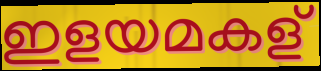
ഇളയമകള്